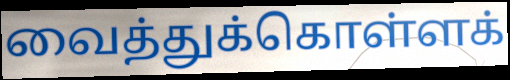
வைத்துக்கொள்ளக்